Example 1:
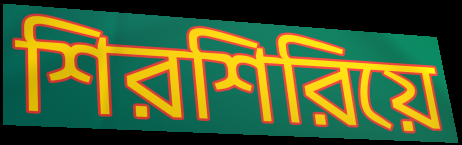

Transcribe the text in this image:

শিরশিরিয়ে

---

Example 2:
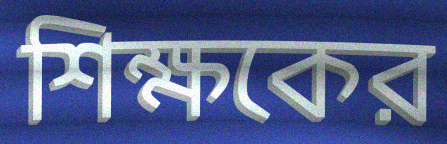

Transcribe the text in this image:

শিক্ষকের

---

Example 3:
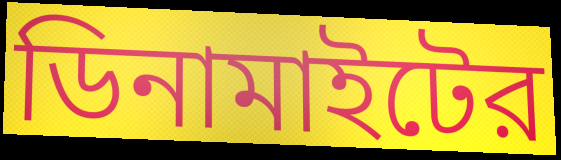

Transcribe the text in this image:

ডিনামাইটের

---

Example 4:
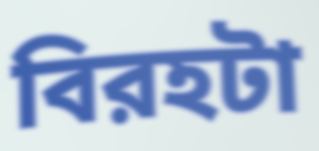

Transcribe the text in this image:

বিরহটা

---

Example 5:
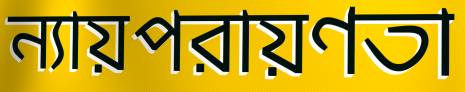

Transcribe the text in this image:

ন্যায়পরায়ণতা